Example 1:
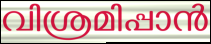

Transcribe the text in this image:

വിശ്രമിപ്പാൻ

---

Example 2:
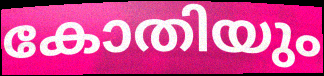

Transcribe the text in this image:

കോതിയും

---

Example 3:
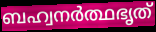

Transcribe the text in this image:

ബഹ്വനർത്ഥഭൃത്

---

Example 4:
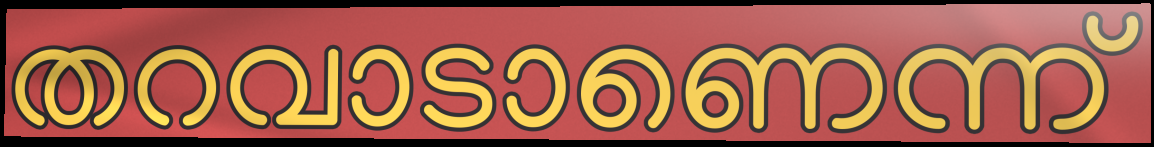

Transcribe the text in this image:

തറവാടാണെന്ന്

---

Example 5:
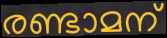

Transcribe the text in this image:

രണ്ടാമന്